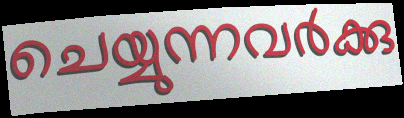
ചെയ്യുന്നവർക്കു